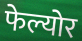
फेल्योर